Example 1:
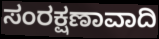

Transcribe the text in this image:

ಸಂರಕ್ಷಣಾವಾದಿ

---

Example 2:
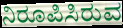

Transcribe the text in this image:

ನಿರೂಪಿಸಿರುವ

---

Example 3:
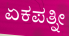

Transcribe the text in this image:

ಏಕಪತ್ನೀ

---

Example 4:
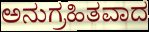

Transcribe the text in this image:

ಅನುಗ್ರಹಿತವಾದ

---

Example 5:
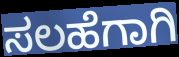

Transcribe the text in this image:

ಸಲಹೆಗಾಗಿ